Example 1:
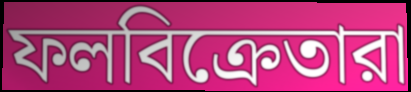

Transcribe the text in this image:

ফলবিক্রেতারা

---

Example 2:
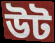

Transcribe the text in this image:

উট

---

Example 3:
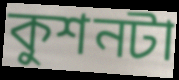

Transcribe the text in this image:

কুশনটা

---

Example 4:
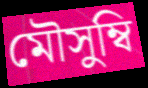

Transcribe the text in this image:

মৌসুম্বি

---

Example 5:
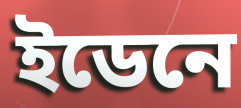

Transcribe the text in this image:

ইডেনে